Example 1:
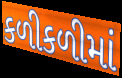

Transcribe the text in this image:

કળીકળીમાં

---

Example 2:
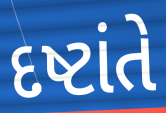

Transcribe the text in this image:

દષ્ટાંતે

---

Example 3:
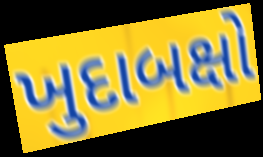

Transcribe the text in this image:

ખુદાબક્ષો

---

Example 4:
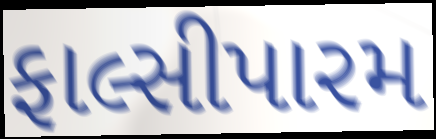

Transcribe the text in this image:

ફાલ્સીપારમ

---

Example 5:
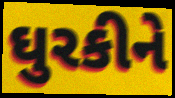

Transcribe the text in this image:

ઘુરકીને